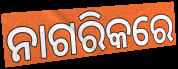
ନାଗରିକରେ